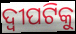
ଦ୍ୱୀପଟିକୁ